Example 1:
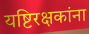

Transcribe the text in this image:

यष्टिरक्षकांना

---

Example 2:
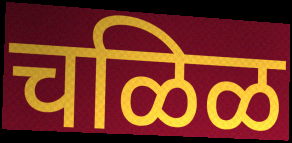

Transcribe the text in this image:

चळिळ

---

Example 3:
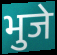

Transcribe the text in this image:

भुजे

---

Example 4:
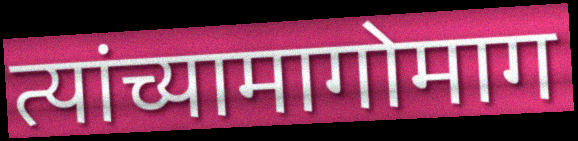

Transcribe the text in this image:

त्यांच्यामागोमाग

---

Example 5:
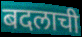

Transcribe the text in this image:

बदलाची